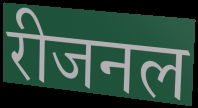
रीजनल